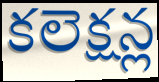
కలెక్షన్ల